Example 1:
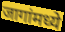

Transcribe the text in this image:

जागांमध्ये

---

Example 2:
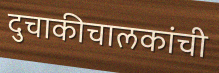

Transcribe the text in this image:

दुचाकीचालकांची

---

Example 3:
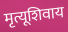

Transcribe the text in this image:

मृत्यूशिवाय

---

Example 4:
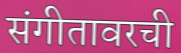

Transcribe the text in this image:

संगीतावरची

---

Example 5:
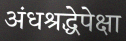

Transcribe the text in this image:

अंधश्रद्धेपेक्षा